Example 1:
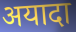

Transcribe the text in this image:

अयादा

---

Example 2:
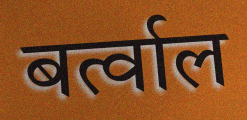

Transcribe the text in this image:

बर्त्वाल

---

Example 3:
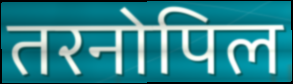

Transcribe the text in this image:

तरनोपिल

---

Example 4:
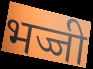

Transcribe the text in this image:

भज्जी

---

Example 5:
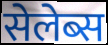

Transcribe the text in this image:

सेलेब्स